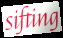
sifting